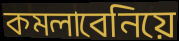
কমলাবেনিয়ে